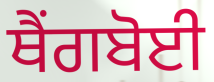
ਥੈਂਗਬੋਈ